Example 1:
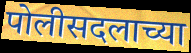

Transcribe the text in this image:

पोलीसदलाच्या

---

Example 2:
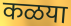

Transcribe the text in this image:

कळया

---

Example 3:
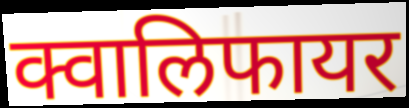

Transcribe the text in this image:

क्वालिफायर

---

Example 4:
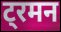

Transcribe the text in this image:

ट्रमन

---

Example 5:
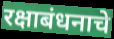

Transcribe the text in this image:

रक्षाबंधनाचे